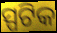
ସ୍ପଟିକ